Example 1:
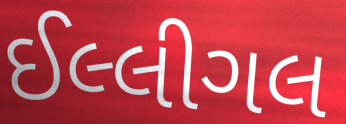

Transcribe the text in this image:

ઈલ્લીગલ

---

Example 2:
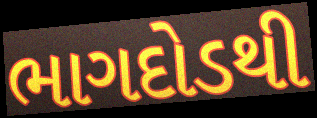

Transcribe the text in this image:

ભાગદોડથી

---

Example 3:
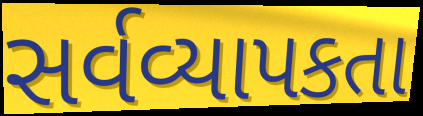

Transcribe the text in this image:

સર્વવ્યાપકતા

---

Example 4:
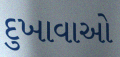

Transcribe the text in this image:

દુખાવાઓ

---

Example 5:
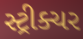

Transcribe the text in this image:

સ્ટ્રીક્ચર